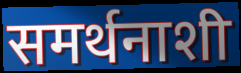
समर्थनाशी